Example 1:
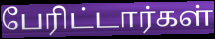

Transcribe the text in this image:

பேரிட்டார்கள்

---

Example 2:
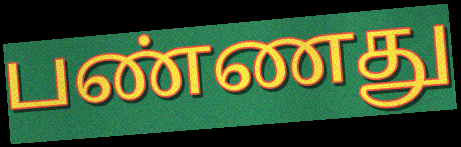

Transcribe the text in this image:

பண்ணது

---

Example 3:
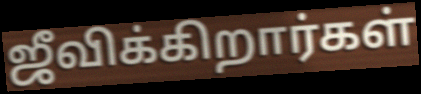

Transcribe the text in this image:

ஜீவிக்கிறார்கள்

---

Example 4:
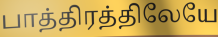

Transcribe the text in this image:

பாத்திரத்திலேயே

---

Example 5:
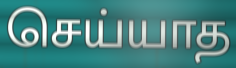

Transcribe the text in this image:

செய்யாத